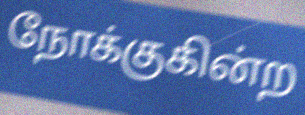
நோக்குகின்ற